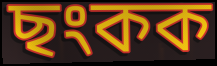
ছংকক